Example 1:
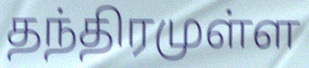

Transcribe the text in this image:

தந்திரமுள்ள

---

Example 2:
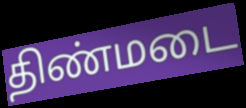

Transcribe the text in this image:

திண்மடை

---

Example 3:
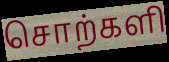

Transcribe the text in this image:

சொற்களி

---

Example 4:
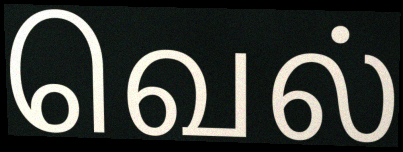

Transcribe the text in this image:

வெல்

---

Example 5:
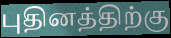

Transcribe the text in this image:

புதினத்திற்கு